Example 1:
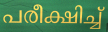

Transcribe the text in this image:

പരീക്ഷിച്ച്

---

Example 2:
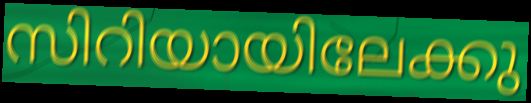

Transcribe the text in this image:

സിറിയായിലേക്കു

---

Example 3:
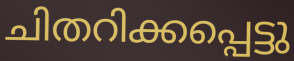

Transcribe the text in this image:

ചിതറിക്കപ്പെട്ടു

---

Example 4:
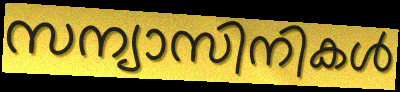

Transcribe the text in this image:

സന്യാസിനികൾ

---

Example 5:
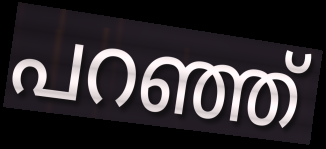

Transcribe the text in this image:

പറഞ്ഞ്